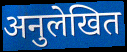
अनुलेखित